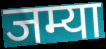
जम्या